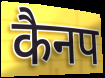
कैनप